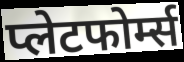
प्लेटफोर्म्स